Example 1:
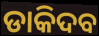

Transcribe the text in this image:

ଡାକିଦବ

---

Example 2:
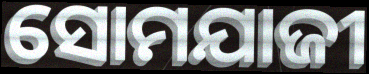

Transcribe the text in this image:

ସୋମଯାଜୀ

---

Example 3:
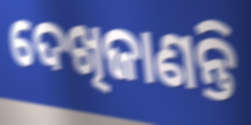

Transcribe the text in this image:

ଦେଖିଜାଣନ୍ତି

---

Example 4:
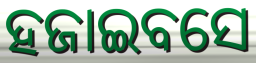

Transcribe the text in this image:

ହଜାଇବସେ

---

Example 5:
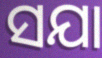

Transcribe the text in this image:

ସଯା